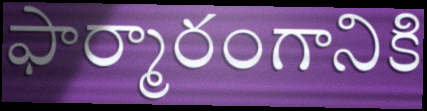
ఫార్మారంగానికి